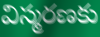
విస్మరణకు